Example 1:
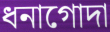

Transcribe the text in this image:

ধনাগোদা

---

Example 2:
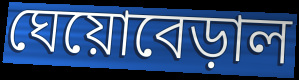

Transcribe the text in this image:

ঘেয়োবেড়াল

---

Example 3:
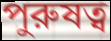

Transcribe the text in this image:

পুরুষত্ব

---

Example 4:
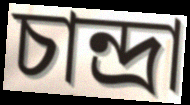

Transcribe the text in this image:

চান্দ্রা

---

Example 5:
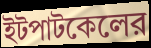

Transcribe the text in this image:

ইটপাটকেলের